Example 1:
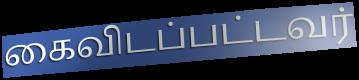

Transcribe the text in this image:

கைவிடப்பட்டவர்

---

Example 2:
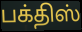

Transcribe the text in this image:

பக்திஸ்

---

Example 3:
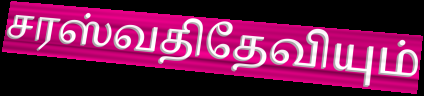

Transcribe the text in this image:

சரஸ்வதிதேவியும்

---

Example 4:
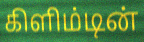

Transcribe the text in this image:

கிளிம்டின்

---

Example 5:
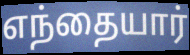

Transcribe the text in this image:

எந்தையார்